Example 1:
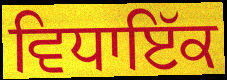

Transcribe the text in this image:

ਵਿਧਾਇੱਕ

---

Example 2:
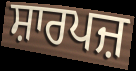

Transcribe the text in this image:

ਸ਼ਾਰਪਜ਼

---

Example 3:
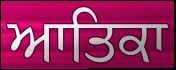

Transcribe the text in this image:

ਆਤਿਕਾ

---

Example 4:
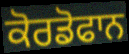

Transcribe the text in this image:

ਕੋਰਡੋਫਾਨ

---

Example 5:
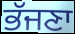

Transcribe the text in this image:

ਭੱਜਣਾ